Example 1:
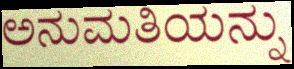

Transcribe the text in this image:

ಅನುಮತಿಯನ್ನು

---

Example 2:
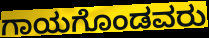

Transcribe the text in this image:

ಗಾಯಗೊಂಡವರು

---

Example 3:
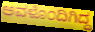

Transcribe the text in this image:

ಅವಳೊಂದಿಗಿದ್ದ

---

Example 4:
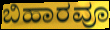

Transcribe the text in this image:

ಬಿಹಾರವೂ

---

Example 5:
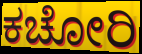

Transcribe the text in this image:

ಕಚೋರಿ